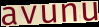
avunu